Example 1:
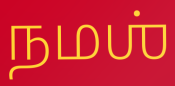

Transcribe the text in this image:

நமஶ்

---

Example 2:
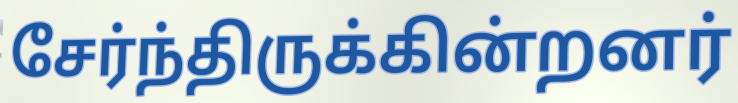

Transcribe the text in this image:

சேர்ந்திருக்கின்றனர்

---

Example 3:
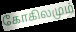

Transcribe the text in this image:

கோகிலமும்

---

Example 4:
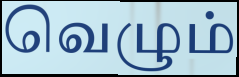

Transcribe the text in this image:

வெழும்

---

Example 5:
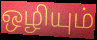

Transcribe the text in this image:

ஒழியும்